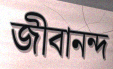
জীবানন্দ